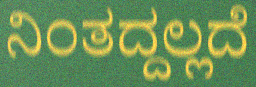
ನಿಂತದ್ದಲ್ಲದೆ